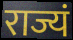
राज्यं